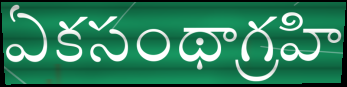
ఏకసంథాగ్రహి